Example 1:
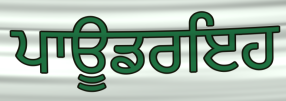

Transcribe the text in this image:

ਪਾਊਡਰਇਹ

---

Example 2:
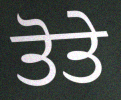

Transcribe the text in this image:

ਤੋਤੇ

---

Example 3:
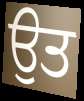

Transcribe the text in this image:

ਉਤ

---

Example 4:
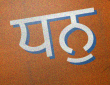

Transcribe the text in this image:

ਧਨੁ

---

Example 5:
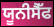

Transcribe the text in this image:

ਯੂਨੀਸੈੱਫ